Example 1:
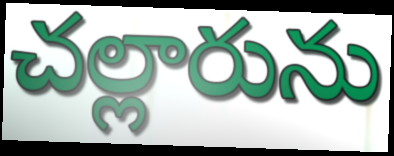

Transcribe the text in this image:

చల్లారును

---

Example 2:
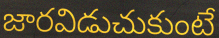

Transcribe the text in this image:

జారవిడుచుకుంటే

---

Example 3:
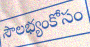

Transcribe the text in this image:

సౌలభ్యంకోసం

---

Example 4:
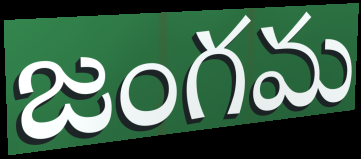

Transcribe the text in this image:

జంగమ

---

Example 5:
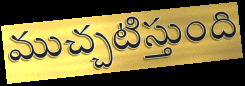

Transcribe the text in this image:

ముచ్చటిస్తుంది